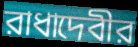
রাধাদেবীর